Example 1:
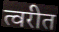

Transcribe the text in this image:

त्वरीत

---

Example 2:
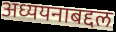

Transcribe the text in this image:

अध्ययनाबद्दल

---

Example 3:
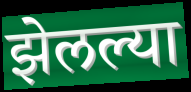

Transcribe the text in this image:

झेलल्या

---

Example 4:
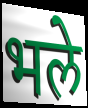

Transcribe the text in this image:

भले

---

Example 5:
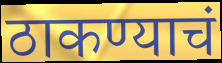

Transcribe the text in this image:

ठाकण्याचं